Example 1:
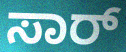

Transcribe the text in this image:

ಸಾರ್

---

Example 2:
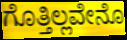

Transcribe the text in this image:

ಗೊತ್ತಿಲ್ಲವೇನೊ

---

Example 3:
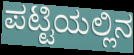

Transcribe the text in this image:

ಪಟ್ಟಿಯಲ್ಲಿನ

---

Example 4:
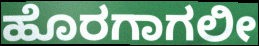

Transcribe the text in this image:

ಹೊರಗಾಗಲೀ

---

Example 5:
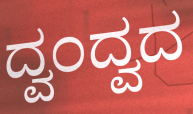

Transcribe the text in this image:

ದ್ವಂದ್ವದ